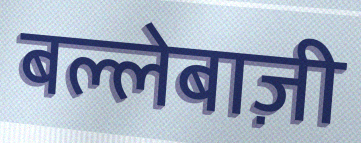
बल्लेबाज़ी